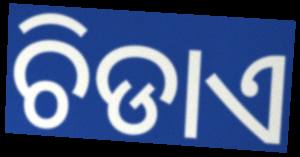
ଚିଡାଏ